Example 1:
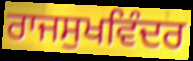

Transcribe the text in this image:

ਰਾਜਸੁਖਵਿੰਦਰ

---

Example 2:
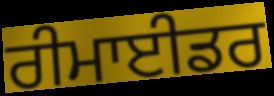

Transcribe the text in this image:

ਰੀਮਾਈਡਰ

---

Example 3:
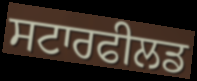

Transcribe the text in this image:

ਸਟਾਰਫੀਲਡ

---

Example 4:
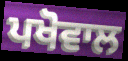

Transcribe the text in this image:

ਪਖੋਵਾਲ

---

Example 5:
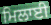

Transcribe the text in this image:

ਮਿਲਾਈ